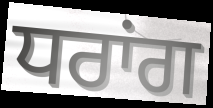
ਧਰਾਂਗ